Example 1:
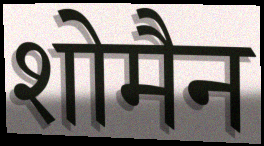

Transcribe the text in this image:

शोमैन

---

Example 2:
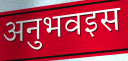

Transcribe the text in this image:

अनुभवइस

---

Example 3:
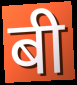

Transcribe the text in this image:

बी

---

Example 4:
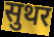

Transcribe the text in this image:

सुथर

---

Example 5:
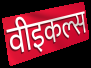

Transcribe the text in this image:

वीइकल्स